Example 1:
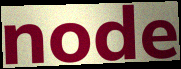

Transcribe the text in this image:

node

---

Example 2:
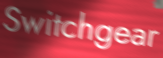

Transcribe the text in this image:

Switchgear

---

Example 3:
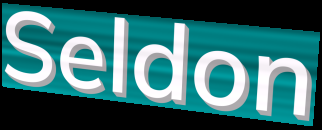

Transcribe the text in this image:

Seldon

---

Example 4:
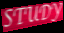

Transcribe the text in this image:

STUDY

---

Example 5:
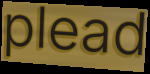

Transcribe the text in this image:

plead